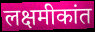
लक्षमीकांत